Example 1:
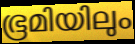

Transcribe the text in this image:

ഭൂമിയിലും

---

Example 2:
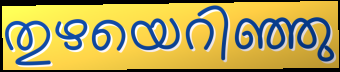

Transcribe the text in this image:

തുഴയെറിഞ്ഞു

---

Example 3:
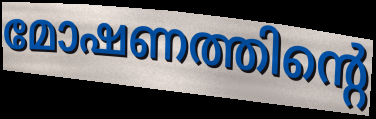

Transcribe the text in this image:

മോഷണത്തിന്റെ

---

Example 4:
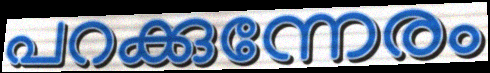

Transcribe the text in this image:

പറക്കുന്നേരം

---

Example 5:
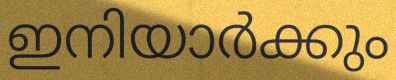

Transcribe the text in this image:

ഇനിയാർക്കും